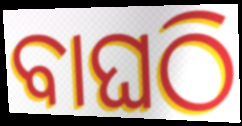
ବାଘଠି